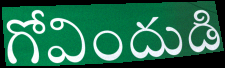
గోవిందుడి